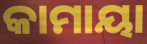
କାମାୟା